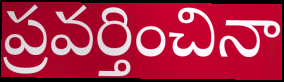
ప్రవర్తించినా